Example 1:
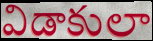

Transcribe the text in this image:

విడాకులా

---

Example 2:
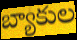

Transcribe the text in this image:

బ్యాకుల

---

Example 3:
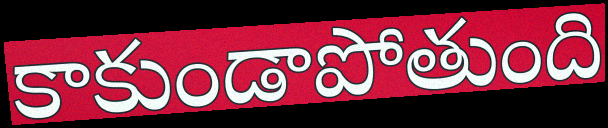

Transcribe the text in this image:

కాకుండాపోతుంది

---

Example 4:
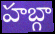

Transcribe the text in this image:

హబ్గా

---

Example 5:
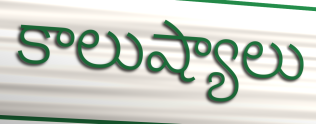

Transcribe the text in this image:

కాలుష్యాలు